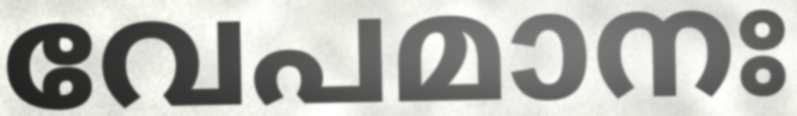
വേപമാനഃ